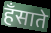
हँसाते